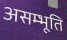
असम्भूति